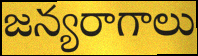
జన్యరాగాలు